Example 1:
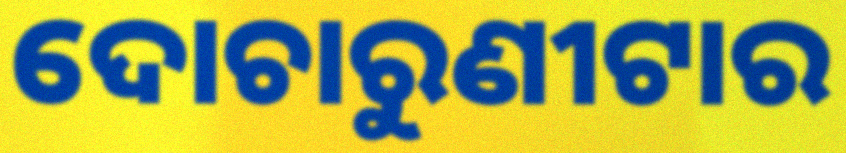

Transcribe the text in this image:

ଦୋଚାରୁଣୀଟାର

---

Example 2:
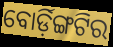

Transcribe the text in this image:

ବୋର୍ଡ଼ିଙ୍ଗଟିର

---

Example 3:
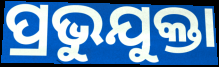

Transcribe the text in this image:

ପ୍ରଭୁଯୁକ୍ତା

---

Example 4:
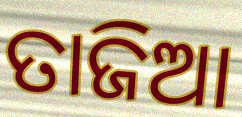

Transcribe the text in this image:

ତାଜିଆ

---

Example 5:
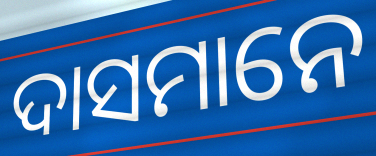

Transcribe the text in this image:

ଦାସମାନେ